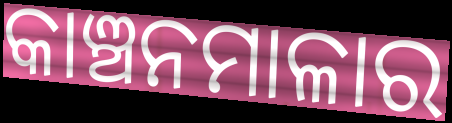
କାଞ୍ଚନମାଳାର